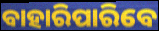
ବାହାରିପାରିବେ